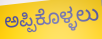
ಅಪ್ಪಿಕೊಳ್ಳಲು